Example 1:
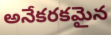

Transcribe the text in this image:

అనేకరకమైన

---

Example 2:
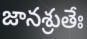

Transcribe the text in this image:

జానశ్రుతేః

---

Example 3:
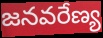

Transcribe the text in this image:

జనవరేణ్య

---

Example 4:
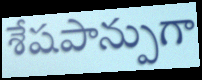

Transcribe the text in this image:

శేషపాన్పుగా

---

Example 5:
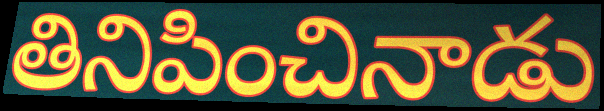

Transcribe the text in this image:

తినిపించినాడు